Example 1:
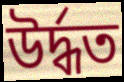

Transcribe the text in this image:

উৰ্দ্ধত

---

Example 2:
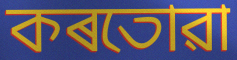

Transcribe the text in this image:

কৰতোৱা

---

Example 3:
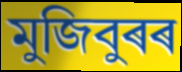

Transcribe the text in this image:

মুজিবুৰৰ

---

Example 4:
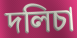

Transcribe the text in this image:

দলিচা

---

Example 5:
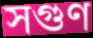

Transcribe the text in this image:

সগুণ